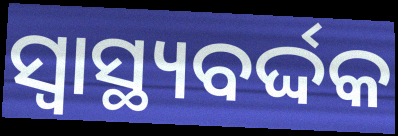
ସ୍ଵାସ୍ଥ୍ୟବର୍ଦ୍ଦକ